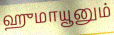
ஹுமாயூனும்